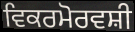
ਵਿਕਰਮੋਰਵਸ਼ੀ